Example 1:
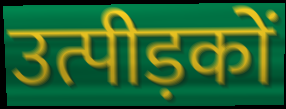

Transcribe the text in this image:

उत्पीड़कों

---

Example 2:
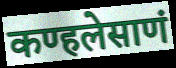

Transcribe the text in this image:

कण्हलेसाणं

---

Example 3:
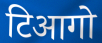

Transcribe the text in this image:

टिआगो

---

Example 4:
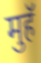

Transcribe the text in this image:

मुहॅ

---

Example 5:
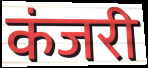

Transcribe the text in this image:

कंजरी